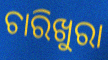
ଚାରିଖୁରା